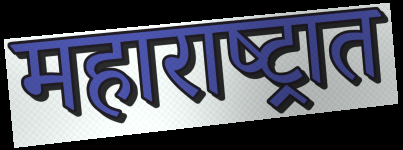
महाराष्‍ट्रात